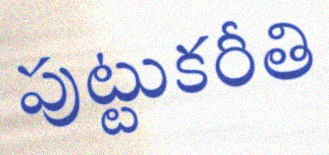
పుట్టుకరీతి